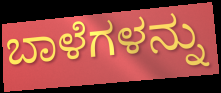
ಬಾಳೆಗಳನ್ನು